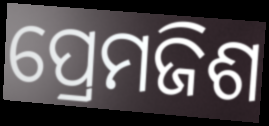
ପ୍ରେମଜିଶ